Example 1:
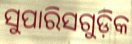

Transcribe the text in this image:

ସୁପାରିସଗୁଡ଼ିକ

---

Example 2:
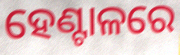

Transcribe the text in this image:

ହେଣ୍ଟାଳରେ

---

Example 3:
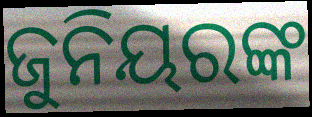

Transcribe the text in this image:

ଜୁନିୟରଙ୍କ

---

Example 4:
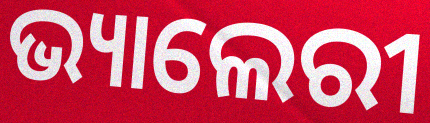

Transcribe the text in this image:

ଭ୍ୟାଲେରୀ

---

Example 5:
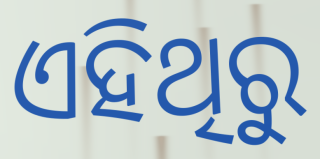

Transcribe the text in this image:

ଏହିଥିରୁ